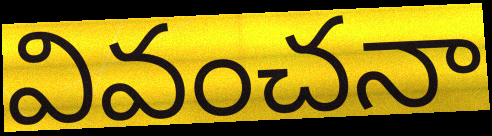
వివంచనా